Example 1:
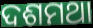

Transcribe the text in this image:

ଦଶମଥା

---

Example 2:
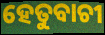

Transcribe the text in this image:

ହେତୁବାଚୀ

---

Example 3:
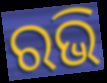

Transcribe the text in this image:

ରଭି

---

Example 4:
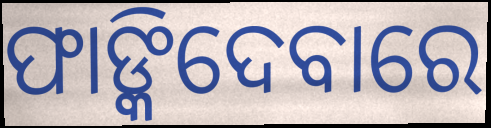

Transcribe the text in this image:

ଫାଙ୍କିଦେବାରେ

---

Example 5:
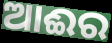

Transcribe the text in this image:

ଆଈର